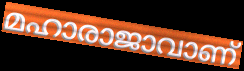
മഹാരാജാവാണ്